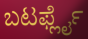
ಬಟರ್ಫ್ಲೈ